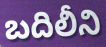
బదిలీని